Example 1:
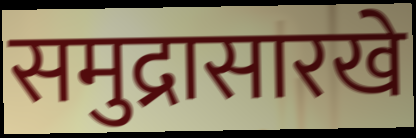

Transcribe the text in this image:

समुद्रासारखे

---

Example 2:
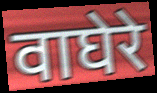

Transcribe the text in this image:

वाघेरे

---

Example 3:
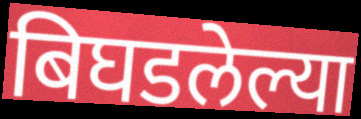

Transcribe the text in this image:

बिघडलेल्या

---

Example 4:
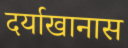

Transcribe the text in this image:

दर्याखानास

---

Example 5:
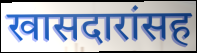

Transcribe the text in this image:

खासदारांसह